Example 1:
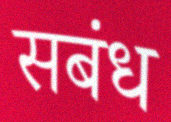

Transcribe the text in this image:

सबंध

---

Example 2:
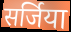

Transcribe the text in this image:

सर्जिया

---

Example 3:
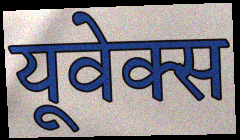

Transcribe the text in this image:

यूवेक्स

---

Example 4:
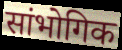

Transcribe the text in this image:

सांभोगिक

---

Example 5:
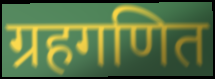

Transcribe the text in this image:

ग्रहगणित